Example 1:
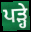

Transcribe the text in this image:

ਪੜ੍ਹੇ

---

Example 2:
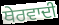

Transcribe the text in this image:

ਥੇਰਵਾਦੀ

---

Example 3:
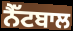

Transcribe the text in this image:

ਨੈੱਟਬਾਲ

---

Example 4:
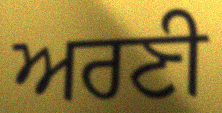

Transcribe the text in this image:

ਅਰਣੀ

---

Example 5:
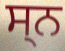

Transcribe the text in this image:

ਸ੍ਨ